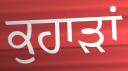
ਕੁਹਾੜਾਂ